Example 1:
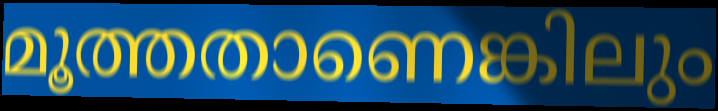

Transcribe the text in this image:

മൂത്തതാണെങ്കിലും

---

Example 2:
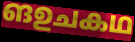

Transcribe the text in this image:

ങഉചകഥ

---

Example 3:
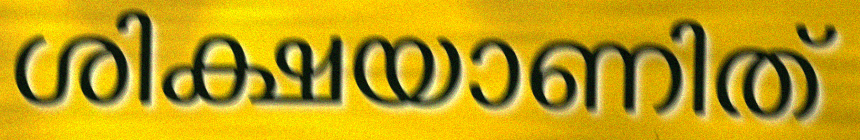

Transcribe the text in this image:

ശിക്ഷയാണിത്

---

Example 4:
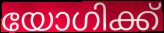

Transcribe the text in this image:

യോഗിക്ക്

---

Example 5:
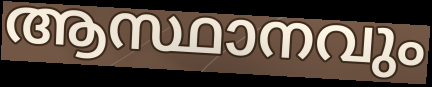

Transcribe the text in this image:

ആസ്ഥാനവും